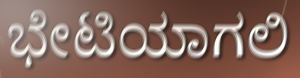
ಭೇಟಿಯಾಗಲಿ